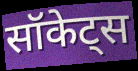
सॉकेट्स